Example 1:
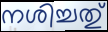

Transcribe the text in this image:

നശിച്ചതു്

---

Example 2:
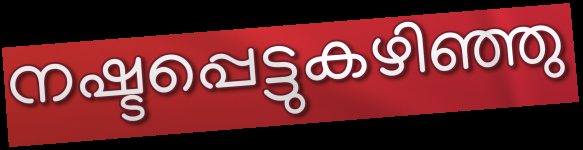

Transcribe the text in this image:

നഷ്ടപ്പെട്ടുകഴിഞ്ഞു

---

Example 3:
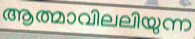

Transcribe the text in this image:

ആത്മാവിലലിയുന്ന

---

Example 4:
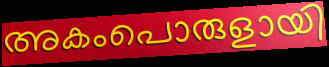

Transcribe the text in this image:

അകംപൊരുളായി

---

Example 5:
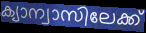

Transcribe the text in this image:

ക്യാന്വാസിലേക്ക്